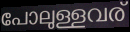
പോലുള്ളവര്